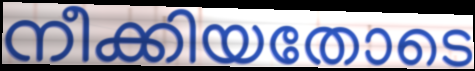
നീക്കിയതോടെ